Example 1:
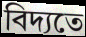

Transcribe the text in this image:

বিদ্যতে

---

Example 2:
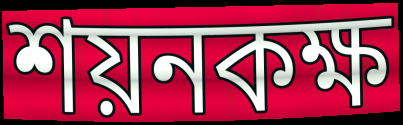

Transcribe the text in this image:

শয়নকক্ষ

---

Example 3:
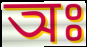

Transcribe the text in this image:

অঃ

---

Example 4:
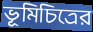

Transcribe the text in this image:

ভূমিচিত্রের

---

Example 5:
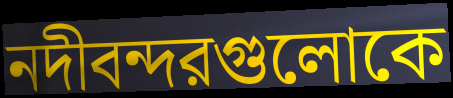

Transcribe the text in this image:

নদীবন্দরগুলোকে